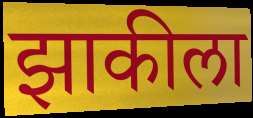
झाकीला